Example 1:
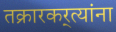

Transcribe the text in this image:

तक्रारकर्त्यांना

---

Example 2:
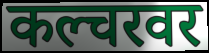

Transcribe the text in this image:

कल्चरवर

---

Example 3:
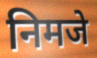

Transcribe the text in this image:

निमजे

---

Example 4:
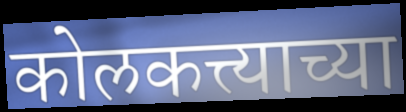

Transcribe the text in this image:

कोलकत्त्याच्या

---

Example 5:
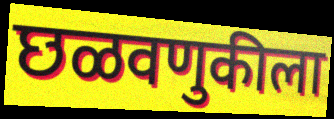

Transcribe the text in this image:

छळवणुकीला